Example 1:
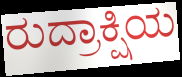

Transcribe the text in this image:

ರುದ್ರಾಕ್ಷಿಯ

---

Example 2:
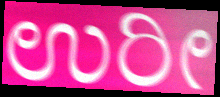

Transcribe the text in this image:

ಉರೀ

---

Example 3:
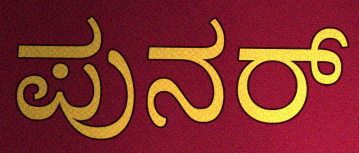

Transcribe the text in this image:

ಪುನರ್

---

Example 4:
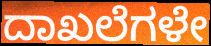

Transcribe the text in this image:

ದಾಖಲೆಗಳೇ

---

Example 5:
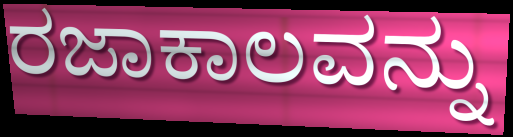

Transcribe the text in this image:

ರಜಾಕಾಲವನ್ನು